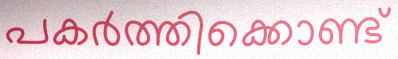
പകർത്തിക്കൊണ്ട്